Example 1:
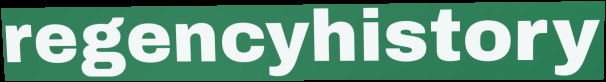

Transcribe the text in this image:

regencyhistory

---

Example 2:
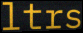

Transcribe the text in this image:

ltrs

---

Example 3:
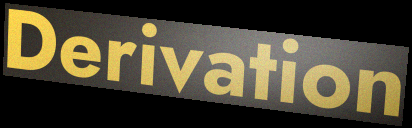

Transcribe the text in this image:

Derivation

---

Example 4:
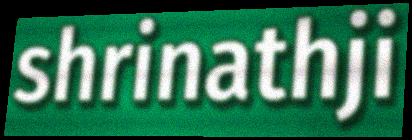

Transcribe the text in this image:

shrinathji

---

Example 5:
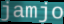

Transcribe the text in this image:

jamjo